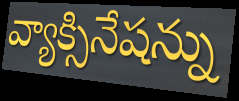
వ్యాక్సినేషన్ను